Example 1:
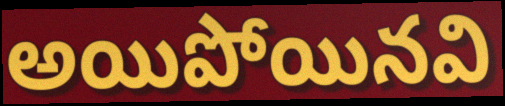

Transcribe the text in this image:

అయిపోయినవి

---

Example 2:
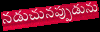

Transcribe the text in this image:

నడుచునప్పుడును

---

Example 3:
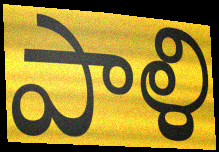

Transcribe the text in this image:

పాళి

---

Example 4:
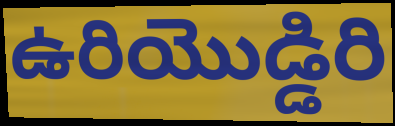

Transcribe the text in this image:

ఉరియొడ్డిరి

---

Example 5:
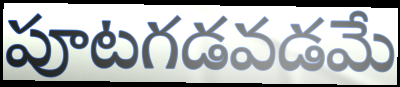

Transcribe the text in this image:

పూటగడవడమే